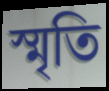
স্মৃতি